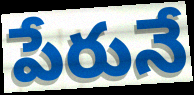
పేరునే